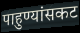
पाहुण्यांसकट